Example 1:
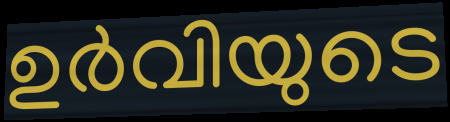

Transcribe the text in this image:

ഉർവിയുടെ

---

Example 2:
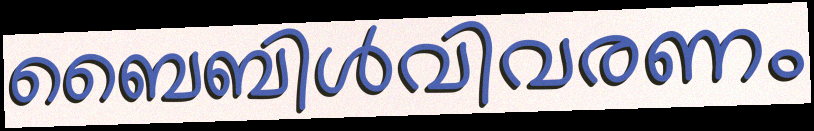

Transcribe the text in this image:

ബൈബിൾവിവരണം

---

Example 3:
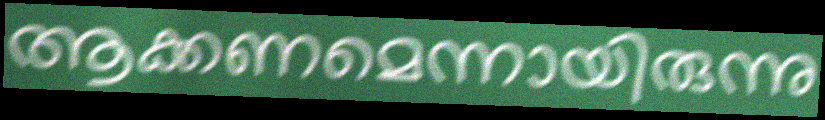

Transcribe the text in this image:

ആക്കണമെന്നായിരുന്നു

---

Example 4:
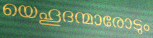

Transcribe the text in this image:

യെഹൂദന്മാരോടും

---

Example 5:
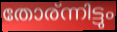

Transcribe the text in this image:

തോര്ന്നിട്ടും